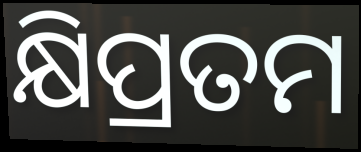
କ୍ଷିପ୍ରତମ